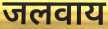
जलवाय